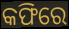
କଫିରେ